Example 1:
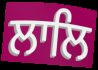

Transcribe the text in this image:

ਲਾਲਿ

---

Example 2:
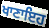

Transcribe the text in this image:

ਖਾਣਾਇਹ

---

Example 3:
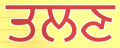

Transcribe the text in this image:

ਤਲਣ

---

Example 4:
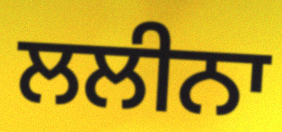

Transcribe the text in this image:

ਲਲੀਨਾ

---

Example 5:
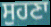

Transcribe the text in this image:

ਸੁਹਣਾ